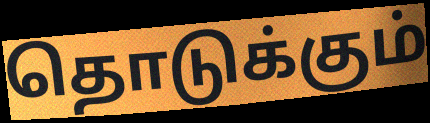
தொடுக்கும்